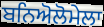
ਬਨਿਅੋਲੋਮੇਲਾ